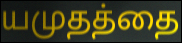
யமுதத்தை